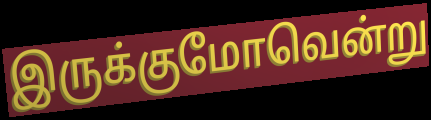
இருக்குமோவென்று